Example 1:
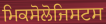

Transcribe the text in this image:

ਮਿਕਸੋਲੋਜਿਸਟਸ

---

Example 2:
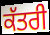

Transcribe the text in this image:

ਕੱਤਰੀ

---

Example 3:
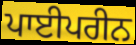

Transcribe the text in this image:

ਪਾਈਪਰੀਨ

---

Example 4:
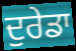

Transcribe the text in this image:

ਦੁਰੇਡਾ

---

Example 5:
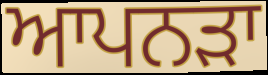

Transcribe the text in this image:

ਆਪਨੜਾ